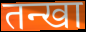
तन्खा